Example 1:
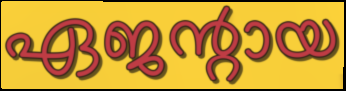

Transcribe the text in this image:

ഏജന്റായ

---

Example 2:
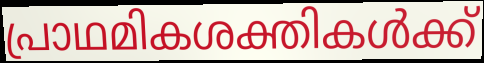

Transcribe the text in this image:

പ്രാഥമികശക്തികൾക്ക്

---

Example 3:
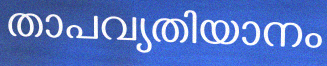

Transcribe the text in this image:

താപവ്യതിയാനം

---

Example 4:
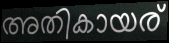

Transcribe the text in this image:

അതികായര്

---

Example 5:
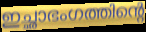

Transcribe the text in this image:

ഇച്ഛാഭംഗത്തിന്റെ